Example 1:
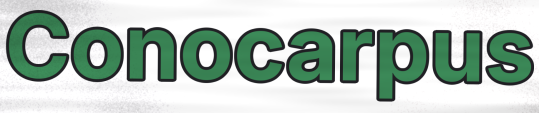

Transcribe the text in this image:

Conocarpus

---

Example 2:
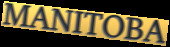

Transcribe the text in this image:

MANITOBA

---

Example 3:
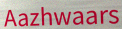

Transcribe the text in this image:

Aazhwaars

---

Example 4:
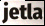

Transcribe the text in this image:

jetla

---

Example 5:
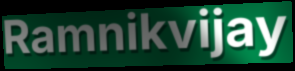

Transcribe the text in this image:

Ramnikvijay